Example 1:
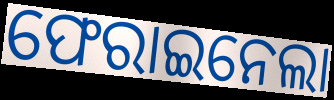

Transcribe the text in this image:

ଫେରାଇନେଲା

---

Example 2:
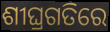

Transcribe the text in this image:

ଶୀଘ୍ରଗତିରେ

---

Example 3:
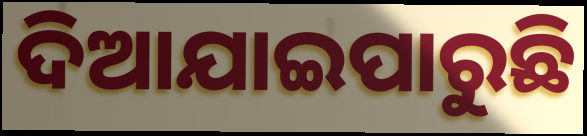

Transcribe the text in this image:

ଦିଆଯାଇପାରୁଛି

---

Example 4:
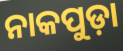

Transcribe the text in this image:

ନାକପୁଡ଼ା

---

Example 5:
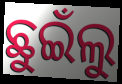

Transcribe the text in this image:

ଛୁଇଁଲୁ